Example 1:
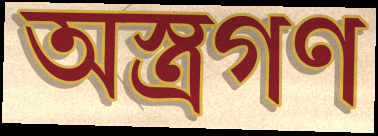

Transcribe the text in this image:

অস্ত্রগণ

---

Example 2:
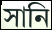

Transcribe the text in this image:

সানি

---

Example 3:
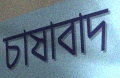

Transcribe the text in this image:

চাষাবাদ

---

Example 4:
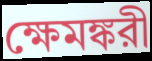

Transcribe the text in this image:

ক্ষেমঙ্করী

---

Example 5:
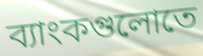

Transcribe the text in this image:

ব্যাংকগুলোতে